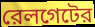
রেলগেটের